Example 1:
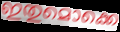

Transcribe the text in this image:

ഇതുമൊക്കെ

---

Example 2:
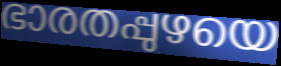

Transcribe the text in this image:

ഭാരതപ്പുഴയെ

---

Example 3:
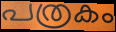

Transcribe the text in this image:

പത്രകം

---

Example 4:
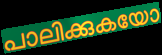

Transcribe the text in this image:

പാലിക്കുകയോ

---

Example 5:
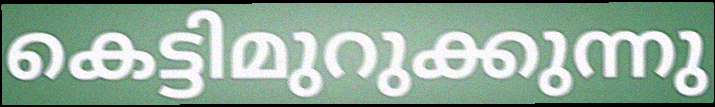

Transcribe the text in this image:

കെട്ടിമുറുക്കുന്നു